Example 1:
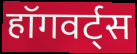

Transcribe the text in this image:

हॉगवर्ट्स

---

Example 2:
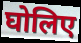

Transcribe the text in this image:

घोलिए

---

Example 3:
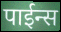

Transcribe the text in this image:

पाईन्स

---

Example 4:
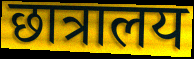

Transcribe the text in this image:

छात्रालय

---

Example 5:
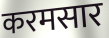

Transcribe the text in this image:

करमसार